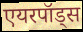
एयरपॉड्स